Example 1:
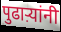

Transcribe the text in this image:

पुढाऱ्‍यांनी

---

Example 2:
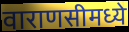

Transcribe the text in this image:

वाराणसीमध्ये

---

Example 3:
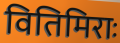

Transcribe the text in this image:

वितिमिराः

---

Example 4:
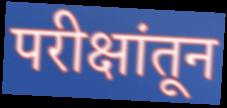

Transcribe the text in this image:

परीक्षांतून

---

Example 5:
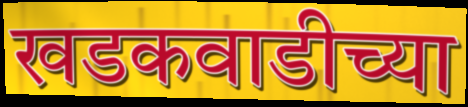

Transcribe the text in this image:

खडकवाडीच्या